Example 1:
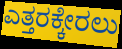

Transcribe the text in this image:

ಎತ್ತರಕ್ಕೇರಲು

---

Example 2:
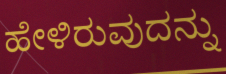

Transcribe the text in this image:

ಹೇಳಿರುವುದನ್ನು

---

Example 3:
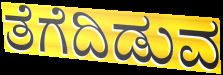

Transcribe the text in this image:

ತೆಗೆದಿಡುವ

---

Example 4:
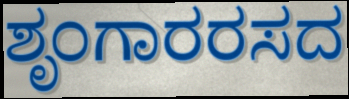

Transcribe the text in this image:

ಶೃಂಗಾರರಸದ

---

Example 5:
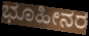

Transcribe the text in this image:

ಭೂಹೀನರ